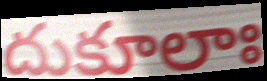
దుకూలాః